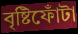
বৃষ্টিফোঁটা